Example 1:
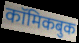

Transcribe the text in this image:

कॉमिकबुक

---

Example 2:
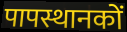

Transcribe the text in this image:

पापस्थानकों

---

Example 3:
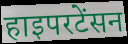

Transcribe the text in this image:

हाइपरटेंसन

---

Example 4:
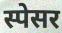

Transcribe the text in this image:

स्पेसर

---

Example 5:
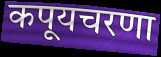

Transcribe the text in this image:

कपूयचरणा